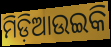
ମିଡ଼ିଆଉଇକି